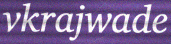
vkrajwade